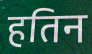
हतिन